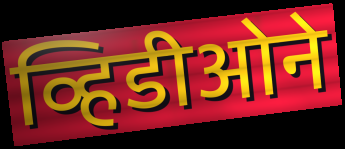
व्हिडीओने